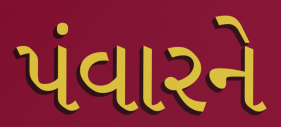
પંવારને